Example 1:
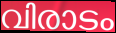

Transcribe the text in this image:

വിരാടം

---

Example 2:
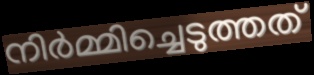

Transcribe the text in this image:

നിർമ്മിച്ചെടുത്തത്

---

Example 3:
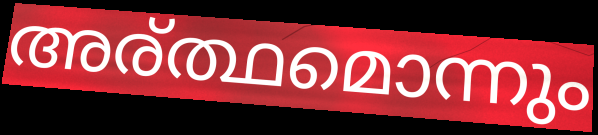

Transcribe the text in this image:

അര്ത്ഥമൊന്നും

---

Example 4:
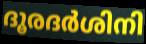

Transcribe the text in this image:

ദൂരദർശിനി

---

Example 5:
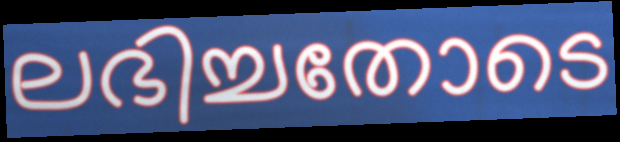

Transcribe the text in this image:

ലഭിച്ചതോടെ